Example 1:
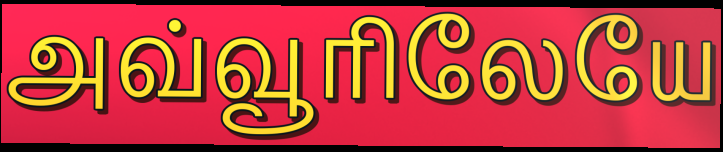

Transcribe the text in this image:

அவ்வூரிலேயே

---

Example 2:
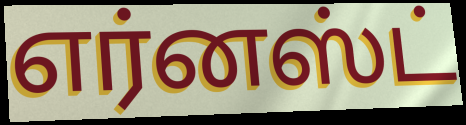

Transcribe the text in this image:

எர்னஸ்ட்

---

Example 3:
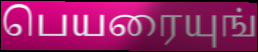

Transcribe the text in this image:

பெயரையுங்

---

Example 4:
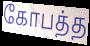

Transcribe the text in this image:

கோபத்த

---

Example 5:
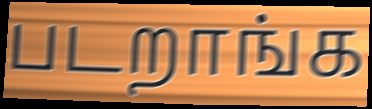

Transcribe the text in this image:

படறாங்க